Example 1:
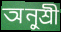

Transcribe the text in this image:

অনুশ্ৰী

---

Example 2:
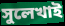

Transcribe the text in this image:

সুলেখাই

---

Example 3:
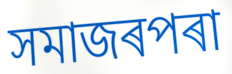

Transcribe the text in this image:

সমাজৰপৰা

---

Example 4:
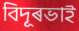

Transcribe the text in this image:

বিদূৰভাই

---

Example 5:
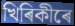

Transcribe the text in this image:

খিৰিকীৰে